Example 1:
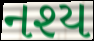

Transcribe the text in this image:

નશ્ય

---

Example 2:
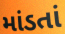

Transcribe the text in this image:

માંડતાં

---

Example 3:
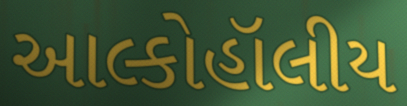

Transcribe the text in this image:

આલ્કોહૉલીય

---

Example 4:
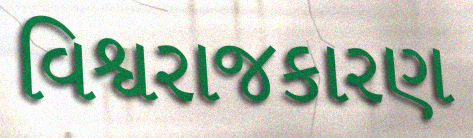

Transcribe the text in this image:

વિશ્વરાજકારણ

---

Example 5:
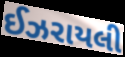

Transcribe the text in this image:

ઈઝરાયલી